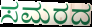
ಸಮರದ